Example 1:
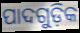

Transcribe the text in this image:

ପାଦଗୁଡ଼ିକ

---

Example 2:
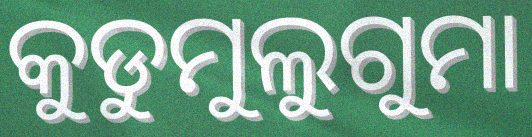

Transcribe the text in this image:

କୁଡୁମୁଲୁଗୁମା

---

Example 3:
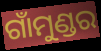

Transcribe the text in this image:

ଗାଁମୁଣ୍ଡର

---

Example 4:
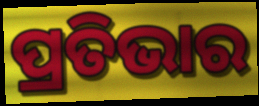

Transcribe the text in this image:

ପ୍ରତିଭାର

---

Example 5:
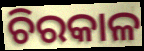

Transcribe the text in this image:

ଚିରକାଳ